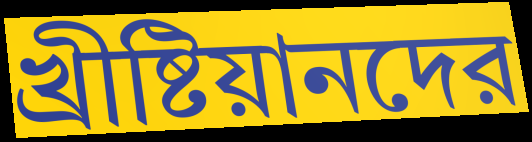
খ্রীষ্টিয়ানদের